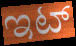
ಇಟ್